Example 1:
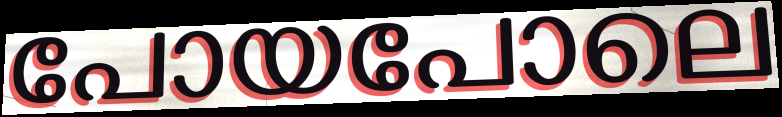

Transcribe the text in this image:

പോയപോലെ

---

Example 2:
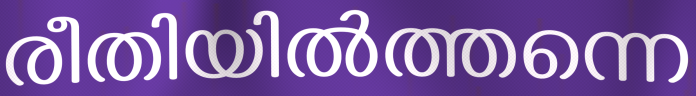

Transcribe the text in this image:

രീതിയിൽത്തന്നെ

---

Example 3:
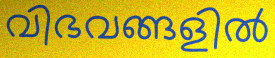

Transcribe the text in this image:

വിഭവങ്ങളിൽ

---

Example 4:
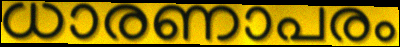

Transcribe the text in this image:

ധാരണാപരം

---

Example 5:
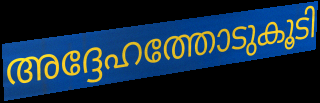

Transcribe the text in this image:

അദ്ദേഹത്തോടുകൂടി